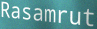
Rasamrut